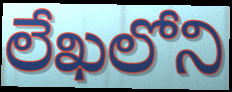
లేఖలోని